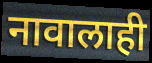
नावालाही